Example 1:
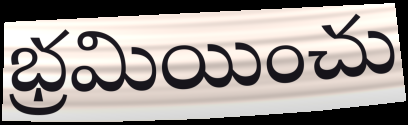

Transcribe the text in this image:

భ్రమియించు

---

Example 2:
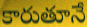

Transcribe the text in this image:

కారుతూనే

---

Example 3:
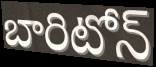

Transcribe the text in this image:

బారిటోన్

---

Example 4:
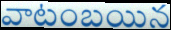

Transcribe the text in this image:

వాటంబయిన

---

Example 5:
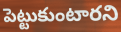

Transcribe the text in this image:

పెట్టుకుంటారని